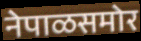
नेपाळसमोर